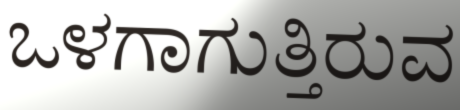
ಒಳಗಾಗುತ್ತಿರುವ